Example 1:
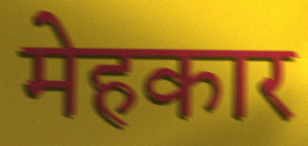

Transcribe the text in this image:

मेहकार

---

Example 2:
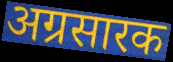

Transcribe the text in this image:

अग्रसारक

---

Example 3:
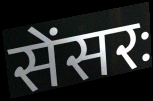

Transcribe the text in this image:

सेंसरः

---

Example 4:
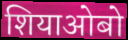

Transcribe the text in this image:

शियाओबो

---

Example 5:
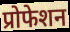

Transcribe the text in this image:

प्रोफेशन